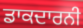
ਡਾਕਦਾਰਨੀ